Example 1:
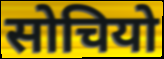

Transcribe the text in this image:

सोचियो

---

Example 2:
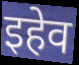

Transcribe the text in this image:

इहेव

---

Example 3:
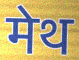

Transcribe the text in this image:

मेथ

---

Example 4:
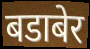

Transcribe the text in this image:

बडाबेर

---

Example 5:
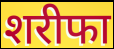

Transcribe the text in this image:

शरीफा